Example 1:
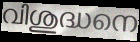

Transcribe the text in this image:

വിശുദ്ധനെ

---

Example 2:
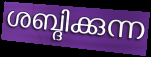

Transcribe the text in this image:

ശബ്ദിക്കുന്ന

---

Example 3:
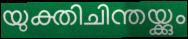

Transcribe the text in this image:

യുക്തിചിന്തയ്ക്കും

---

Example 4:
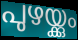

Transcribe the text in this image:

പുഴയ്ക്കും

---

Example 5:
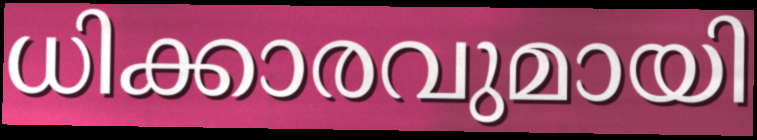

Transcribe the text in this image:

ധിക്കാരവുമായി